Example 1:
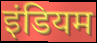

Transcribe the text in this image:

इंडियम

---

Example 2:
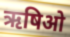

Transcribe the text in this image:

ऋषिओ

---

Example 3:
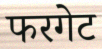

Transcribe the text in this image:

फरगेट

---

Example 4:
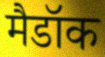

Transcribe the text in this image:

मैडॉक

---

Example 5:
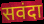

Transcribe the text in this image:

सवंदा